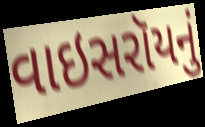
વાઇસરૉયનું